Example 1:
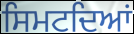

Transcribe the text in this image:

ਸਿਮਟਦਿਆਂ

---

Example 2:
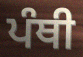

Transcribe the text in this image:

ਪੰਥੀ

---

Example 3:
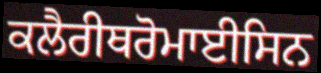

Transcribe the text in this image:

ਕਲੈਰੀਥਰੋਮਾਈਸਿਨ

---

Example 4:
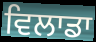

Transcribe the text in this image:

ਵਿਲਾਡਾ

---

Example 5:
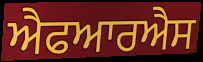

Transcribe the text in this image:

ਐਫਆਰਐਸ